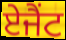
ਏਜੈਂਟ